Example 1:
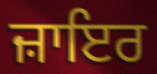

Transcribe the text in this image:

ਜ਼ਾਇਰ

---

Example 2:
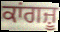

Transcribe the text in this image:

ਕਾਂਗਜ਼ੂ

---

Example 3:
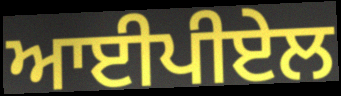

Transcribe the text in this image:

ਆਈਪੀਏਲ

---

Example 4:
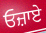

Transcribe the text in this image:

ਓਜ਼ਾਏ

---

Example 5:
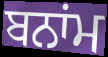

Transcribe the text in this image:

ਬਨਾਂਮ